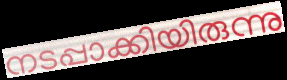
നടപ്പാക്കിയിരുന്നു